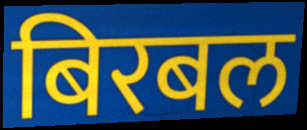
बिरबल